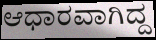
ಆಧಾರವಾಗಿದ್ದ